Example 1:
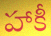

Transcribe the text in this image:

హాకీ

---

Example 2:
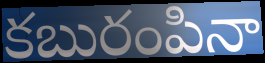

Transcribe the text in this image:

కబురంపినా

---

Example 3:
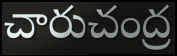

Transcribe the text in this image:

చారుచంద్ర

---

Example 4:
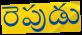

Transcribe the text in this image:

రెపుడు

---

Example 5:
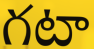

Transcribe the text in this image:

గటా